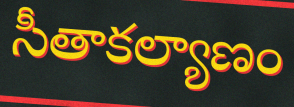
సీతాకల్యాణం